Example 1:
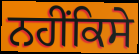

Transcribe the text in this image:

ਨਹੀਂਕਿਸੇ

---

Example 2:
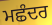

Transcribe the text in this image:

ਮਛੰਦਰ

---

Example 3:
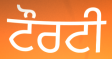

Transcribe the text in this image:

ਟੌਰਟੀ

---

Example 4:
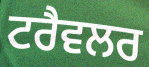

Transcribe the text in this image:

ਟਰੈਵਲਰ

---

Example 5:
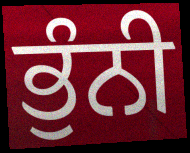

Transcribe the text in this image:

ਭੁੰਨੀ